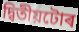
দ্বিতীয়টোৰ